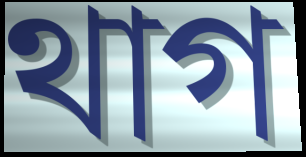
থাগ